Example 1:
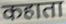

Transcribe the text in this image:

कहाता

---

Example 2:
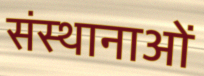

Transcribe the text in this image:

संस्थानाओं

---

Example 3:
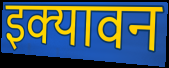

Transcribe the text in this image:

इक्यावन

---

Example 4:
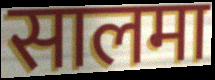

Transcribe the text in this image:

सालमा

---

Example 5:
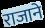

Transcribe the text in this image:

राजाने